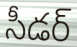
సీడర్